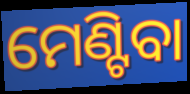
ମେଣ୍ଟିବା